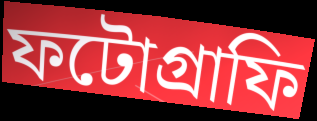
ফটোগ্ৰাফি